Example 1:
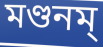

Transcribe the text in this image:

মণ্ডনম্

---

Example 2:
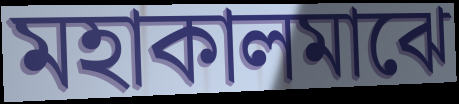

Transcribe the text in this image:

মহাকালমাঝে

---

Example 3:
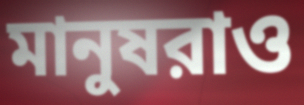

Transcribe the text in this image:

মানুষরাও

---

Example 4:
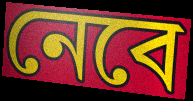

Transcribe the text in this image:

নেবে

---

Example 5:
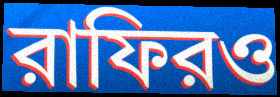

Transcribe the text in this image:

রাফিরও